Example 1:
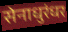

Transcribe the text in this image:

सेनाधुरंधर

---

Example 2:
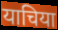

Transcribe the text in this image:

याचिया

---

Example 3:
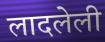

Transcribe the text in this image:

लादलेली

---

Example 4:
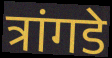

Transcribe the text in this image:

त्रांगडे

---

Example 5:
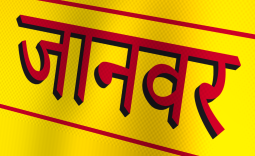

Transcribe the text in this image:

जानवर